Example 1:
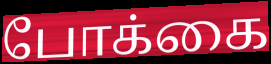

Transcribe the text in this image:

போக்கை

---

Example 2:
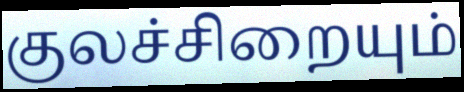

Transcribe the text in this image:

குலச்சிறையும்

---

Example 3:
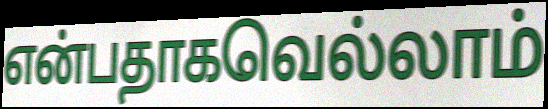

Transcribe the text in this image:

என்பதாகவெல்லாம்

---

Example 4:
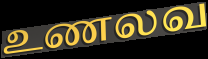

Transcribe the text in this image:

உணலவ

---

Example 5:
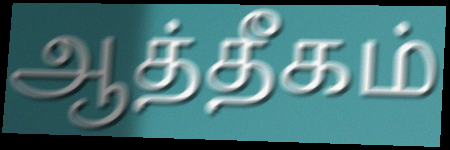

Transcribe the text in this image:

ஆத்தீகம்